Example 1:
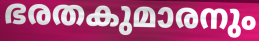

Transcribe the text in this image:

ഭരതകുമാരനും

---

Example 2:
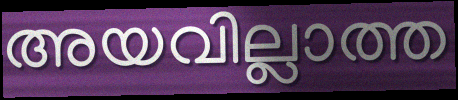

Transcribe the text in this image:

അയവില്ലാത്ത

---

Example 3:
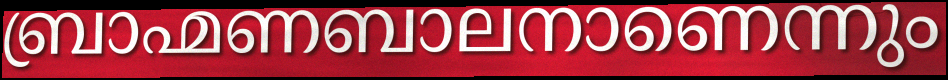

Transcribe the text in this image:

ബ്രാഹ്മണബാലനാണെന്നും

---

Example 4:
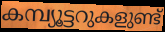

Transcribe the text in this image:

കമ്പ്യൂട്ടറുകളുണ്ട്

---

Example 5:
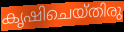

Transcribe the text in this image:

കൃഷിചെയ്തിരു